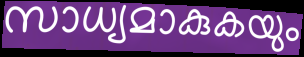
സാധ്യമാകുകയും